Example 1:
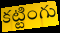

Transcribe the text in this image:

కట్టింగు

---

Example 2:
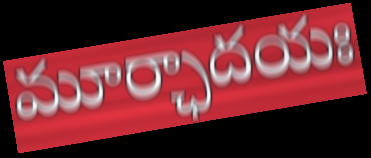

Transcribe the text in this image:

మూర్ఛాదయః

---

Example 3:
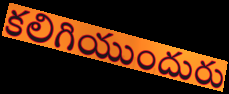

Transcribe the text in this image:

కలిగియుందురు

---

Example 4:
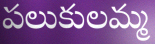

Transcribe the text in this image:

పలుకులమ్మ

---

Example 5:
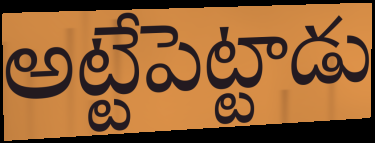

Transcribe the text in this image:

అట్టేపెట్టాడు